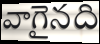
వాగైనది